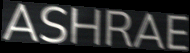
ASHRAE